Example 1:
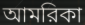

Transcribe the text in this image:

আমরিকা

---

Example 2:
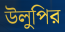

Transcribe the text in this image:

উলুপির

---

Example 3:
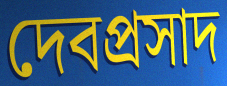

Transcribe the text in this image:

দেবপ্রসাদ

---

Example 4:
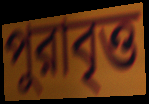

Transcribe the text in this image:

পুরাবৃত্ত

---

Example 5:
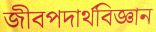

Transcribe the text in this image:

জীবপদার্থবিজ্ঞান